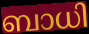
ബാധി